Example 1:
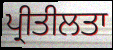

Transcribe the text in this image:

ਪ੍ਰੀਤੀਲਤਾ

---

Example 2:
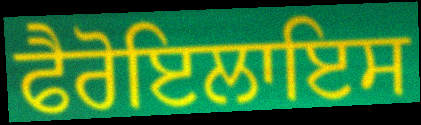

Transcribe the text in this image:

ਫੈਰੋਇਲਾਇਸ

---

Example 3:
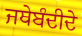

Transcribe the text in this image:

ਜਥੇਬੰਦੀਦੇ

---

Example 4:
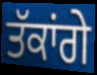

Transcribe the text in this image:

ਤੱਕਾਂਗੇ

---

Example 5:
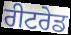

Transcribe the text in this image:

ਰੀਟਰੇਡ